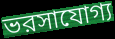
ভরসাযোগ্য